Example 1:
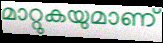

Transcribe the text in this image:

മാറ്റുകയുമാണ്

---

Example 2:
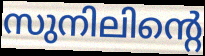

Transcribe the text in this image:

സുനിലിന്റെ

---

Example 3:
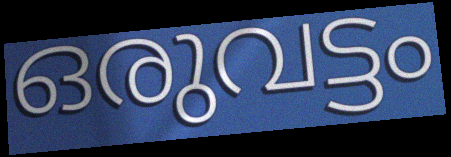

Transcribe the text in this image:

ഒരുവട്ടം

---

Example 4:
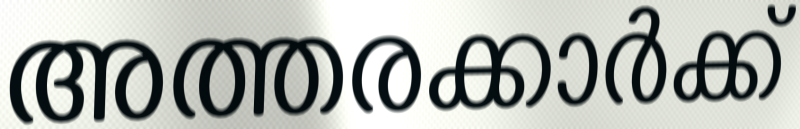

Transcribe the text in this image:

അത്തരക്കാർക്ക്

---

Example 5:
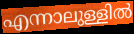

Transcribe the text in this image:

എന്നാലുള്ളിൽ